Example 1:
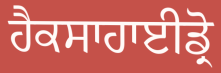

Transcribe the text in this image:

ਹੈਕਸਾਹਾਈਡ੍ਰੋ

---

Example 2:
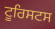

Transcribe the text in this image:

ਟੂਰਿਸਟਸ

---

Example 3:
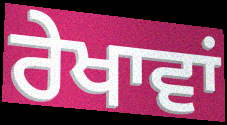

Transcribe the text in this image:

ਰੇਖਾਵਾਂ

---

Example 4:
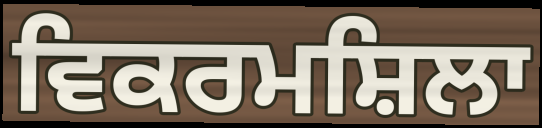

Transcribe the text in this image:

ਵਿਕਰਮਸ਼ਿਲਾ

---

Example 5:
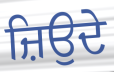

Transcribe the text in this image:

ਜ਼ਿਉਦੇ